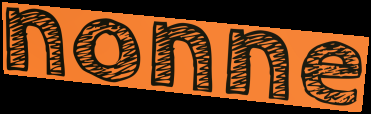
nonne